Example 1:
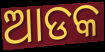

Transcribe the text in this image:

ଆଡକ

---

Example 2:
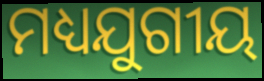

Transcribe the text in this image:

ମଧ୍ଯଯୁଗୀୟ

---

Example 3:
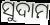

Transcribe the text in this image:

ସୁଦାମ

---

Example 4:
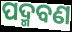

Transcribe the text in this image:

ପଦ୍ମବଣ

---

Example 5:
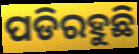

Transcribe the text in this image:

ପଡିରହୁଛି